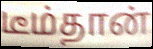
டீம்தான்